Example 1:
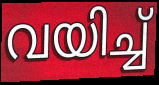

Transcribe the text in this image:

വയിച്ച്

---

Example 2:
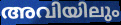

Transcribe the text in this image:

അവിയിലും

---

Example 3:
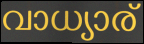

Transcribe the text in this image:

വാധ്യാര്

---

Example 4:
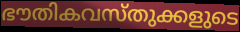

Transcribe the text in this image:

ഭൗതികവസ്തുക്കളുടെ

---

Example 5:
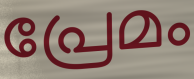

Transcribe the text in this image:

പ്രേമം